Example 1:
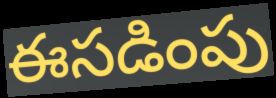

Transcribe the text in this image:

ఈసడింపు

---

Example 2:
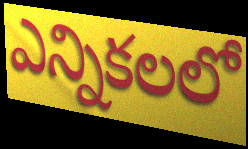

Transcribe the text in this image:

ఎన్నికలలో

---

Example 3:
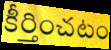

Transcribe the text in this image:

కీర్తించటం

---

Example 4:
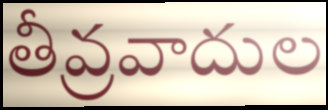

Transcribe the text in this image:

తీవ్రవాదుల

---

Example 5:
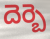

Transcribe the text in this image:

దెర్బె